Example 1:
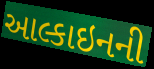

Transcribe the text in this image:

આલ્કાઇનની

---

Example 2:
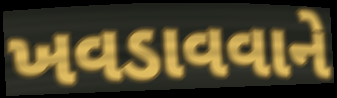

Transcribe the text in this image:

ખવડાવવાને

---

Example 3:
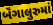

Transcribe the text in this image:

બૅંગાલુરુમાં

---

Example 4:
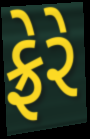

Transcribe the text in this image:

ફ્રેરે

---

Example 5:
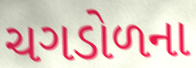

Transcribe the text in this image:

ચગડોળના